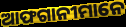
ଆଫଗାନୀମାନେ